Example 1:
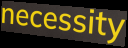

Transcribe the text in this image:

necessity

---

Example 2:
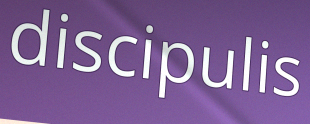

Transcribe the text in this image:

discipulis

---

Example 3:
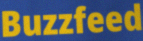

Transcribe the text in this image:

Buzzfeed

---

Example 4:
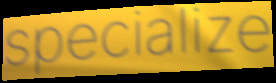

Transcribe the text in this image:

specialize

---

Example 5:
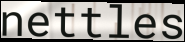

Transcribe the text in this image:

nettles